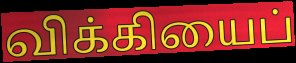
விக்கியைப்